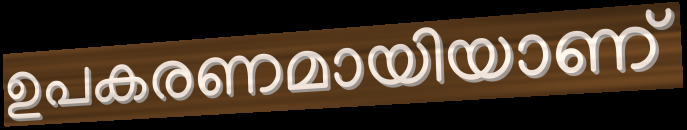
ഉപകരണമായിയാണ്